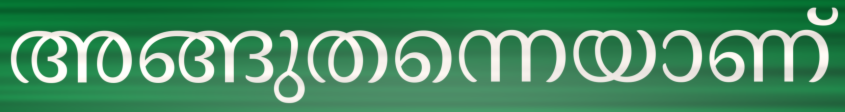
അങ്ങുതന്നെയാണ്